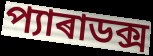
প্যাৰাডক্স